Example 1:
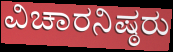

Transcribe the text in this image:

ವಿಚಾರನಿಷ್ಠರು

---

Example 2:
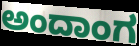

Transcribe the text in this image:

ಅಂದಾಂಗ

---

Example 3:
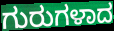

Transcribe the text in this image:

ಗುರುಗಳಾದ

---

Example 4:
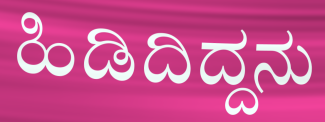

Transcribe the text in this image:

ಹಿಡಿದಿದ್ದನು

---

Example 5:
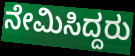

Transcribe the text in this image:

ನೇಮಿಸಿದ್ದರು